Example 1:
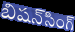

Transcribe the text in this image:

బిషన్‌సింగ్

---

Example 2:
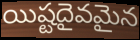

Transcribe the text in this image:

యిష్టదైవమైన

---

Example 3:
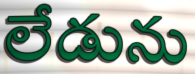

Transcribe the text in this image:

లేడును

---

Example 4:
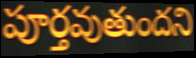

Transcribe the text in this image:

పూర్తవుతుందని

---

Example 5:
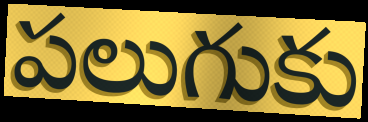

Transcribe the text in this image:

పలుగుకు